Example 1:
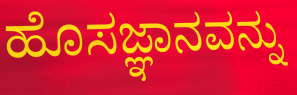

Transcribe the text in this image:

ಹೊಸಜ್ಞಾನವನ್ನು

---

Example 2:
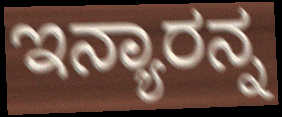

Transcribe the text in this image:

ಇನ್ಯಾರನ್ನ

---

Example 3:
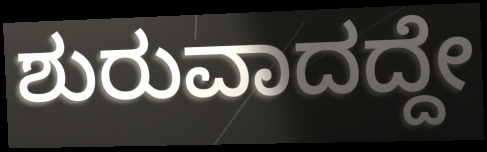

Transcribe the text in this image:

ಶುರುವಾದದ್ದೇ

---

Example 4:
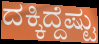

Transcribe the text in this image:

ದಕ್ಕಿದ್ದೆಷ್ಟು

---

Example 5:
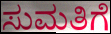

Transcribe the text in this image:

ಸುಮತಿಗೆ